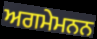
ਅਗਮੇਮਨਨ